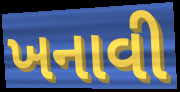
ખનાવી